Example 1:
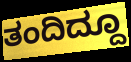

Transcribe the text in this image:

ತಂದಿದ್ದೂ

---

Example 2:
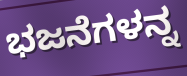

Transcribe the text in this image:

ಭಜನೆಗಳನ್ನ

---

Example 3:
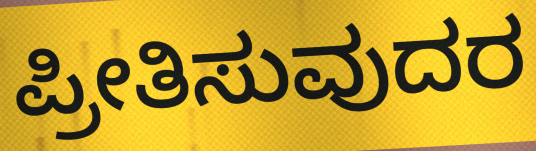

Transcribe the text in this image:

ಪ್ರೀತಿಸುವುದರ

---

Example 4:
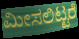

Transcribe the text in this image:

ಮೀಸಲಿಟ್ಟರೆ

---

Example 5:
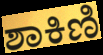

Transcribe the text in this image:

ಶಾಕಿಣಿ